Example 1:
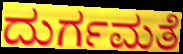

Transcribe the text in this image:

ದುರ್ಗಮತೆ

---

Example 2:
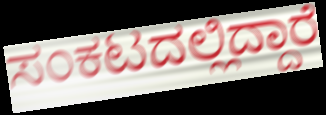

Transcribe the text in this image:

ಸಂಕಟದಲ್ಲಿದ್ದಾರೆ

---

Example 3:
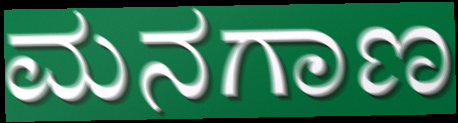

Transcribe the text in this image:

ಮನಗಾಣ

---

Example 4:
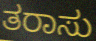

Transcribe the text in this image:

ತರಾಸು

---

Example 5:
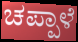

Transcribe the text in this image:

ಚಪ್ಪಾಳೆ